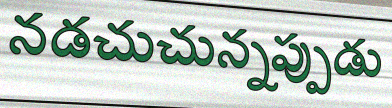
నడచుచున్నప్పుడు